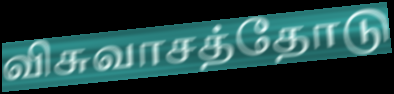
விசுவாசத்தோடு